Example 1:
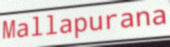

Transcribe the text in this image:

Mallapurana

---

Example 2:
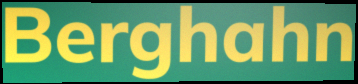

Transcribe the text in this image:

Berghahn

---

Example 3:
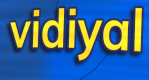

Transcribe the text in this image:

vidiyal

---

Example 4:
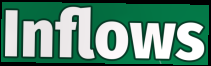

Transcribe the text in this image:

Inflows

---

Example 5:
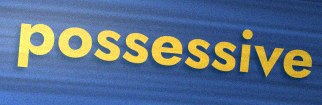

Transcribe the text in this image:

possessive